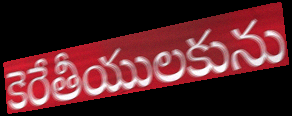
కెరేతీయులకును